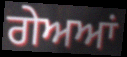
ਗੇਅਆਂ